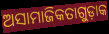
ଅସାମାଜିକତାଗୁଡ଼ାକ